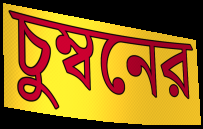
চুম্বনের